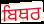
ਬਿਥਰ